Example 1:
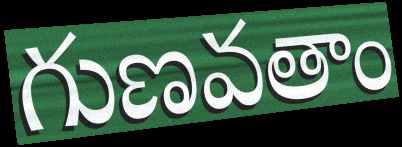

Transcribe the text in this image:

గుణవతాం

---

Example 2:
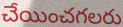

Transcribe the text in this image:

చేయించగలరు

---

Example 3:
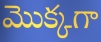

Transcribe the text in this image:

మొక్కగా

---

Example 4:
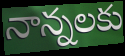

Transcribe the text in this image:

నాన్నలకు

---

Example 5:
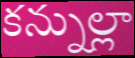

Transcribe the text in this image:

కన్నుల్లా